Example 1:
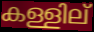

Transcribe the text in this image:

കള്ളില്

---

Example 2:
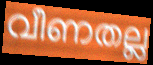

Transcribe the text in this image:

വീണതല്ല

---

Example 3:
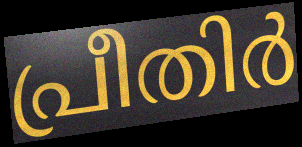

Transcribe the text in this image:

പ്രീതിർ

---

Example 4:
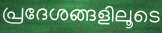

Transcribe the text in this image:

പ്രദേശങ്ങളിലൂടെ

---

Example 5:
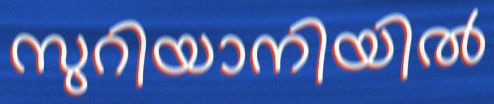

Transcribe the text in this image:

സുറിയാനിയിൽ